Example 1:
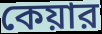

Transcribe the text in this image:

কেয়ার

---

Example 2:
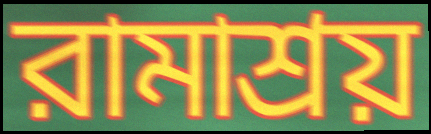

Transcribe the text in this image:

রামাশ্রয়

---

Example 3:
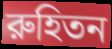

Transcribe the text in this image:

রুহিতন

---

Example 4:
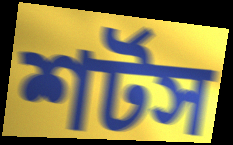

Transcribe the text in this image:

শর্টস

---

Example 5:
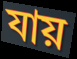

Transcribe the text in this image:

যায়